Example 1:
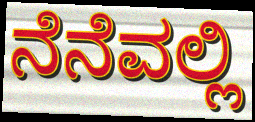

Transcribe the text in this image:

ನೆನೆವಲ್ಲಿ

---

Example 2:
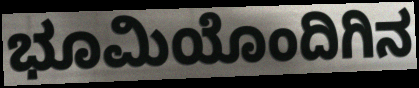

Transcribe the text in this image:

ಭೂಮಿಯೊಂದಿಗಿನ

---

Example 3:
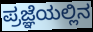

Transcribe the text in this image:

ಪ್ರಜ್ಞೆಯಲ್ಲಿನ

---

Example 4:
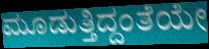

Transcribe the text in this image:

ಮೂಡುತ್ತಿದ್ದಂತೆಯೇ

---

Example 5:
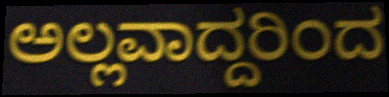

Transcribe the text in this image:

ಅಲ್ಲವಾದ್ದರಿಂದ